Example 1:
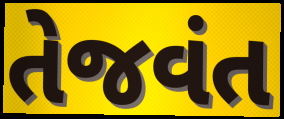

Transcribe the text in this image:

તેજવંત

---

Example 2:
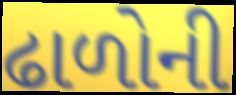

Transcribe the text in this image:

ઢાળોની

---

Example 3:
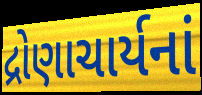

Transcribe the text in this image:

દ્રોણાચાર્યનાં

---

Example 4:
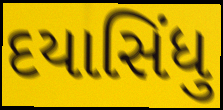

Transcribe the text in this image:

દયાસિંધુ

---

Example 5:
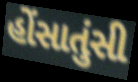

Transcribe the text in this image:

હોંસાતુંસી